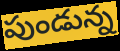
పుండున్న